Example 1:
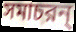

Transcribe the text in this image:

সমাচরন্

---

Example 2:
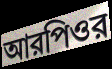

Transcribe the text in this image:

আরপিওর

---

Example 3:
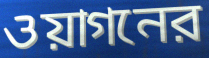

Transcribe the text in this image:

ওয়াগনের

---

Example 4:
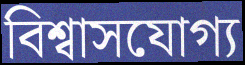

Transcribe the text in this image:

বিশ্বাসযোগ্য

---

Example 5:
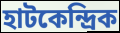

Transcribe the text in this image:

হাটকেন্দ্রিক